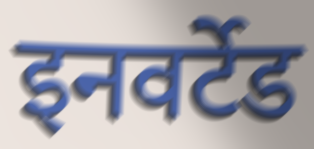
इनवर्टेड